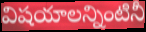
విషయాలన్నింటినీ